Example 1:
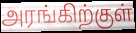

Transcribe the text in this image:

அரங்கிற்குள்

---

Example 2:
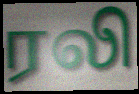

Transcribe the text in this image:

ரலி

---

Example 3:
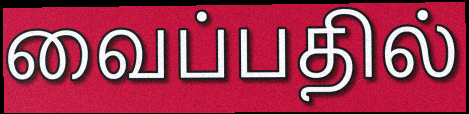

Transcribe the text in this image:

வைப்பதில்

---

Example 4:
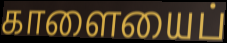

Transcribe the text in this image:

காளையைப்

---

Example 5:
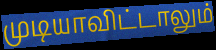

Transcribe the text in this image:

முடியாவிட்டாலும்